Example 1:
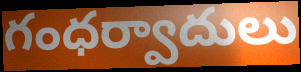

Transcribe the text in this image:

గంధర్వాదులు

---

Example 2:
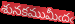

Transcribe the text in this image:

శునకముమీఁదఁ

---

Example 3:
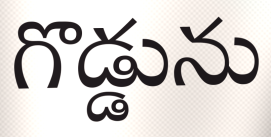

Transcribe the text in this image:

గొడ్డును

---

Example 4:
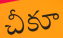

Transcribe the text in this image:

చీకూ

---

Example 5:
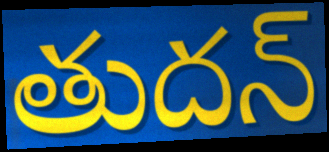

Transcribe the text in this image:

తుదన్